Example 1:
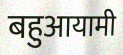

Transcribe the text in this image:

बहुआयामी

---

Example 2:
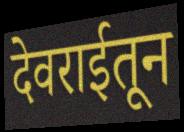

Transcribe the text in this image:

देवराईतून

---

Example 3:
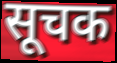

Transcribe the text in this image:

सूचक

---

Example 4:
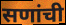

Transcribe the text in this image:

सणांची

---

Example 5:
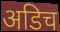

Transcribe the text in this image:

अडिच